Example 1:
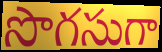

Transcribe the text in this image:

సొగసుగా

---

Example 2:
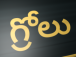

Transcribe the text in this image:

గ్రోలు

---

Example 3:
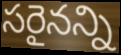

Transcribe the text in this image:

సరైనన్ని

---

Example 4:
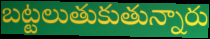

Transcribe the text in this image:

బట్టలుతుకుతున్నారు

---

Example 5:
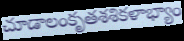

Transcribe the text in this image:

చూడాలంకృతశశికళాభ్యాం